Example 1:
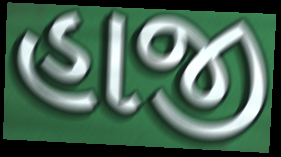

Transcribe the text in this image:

હાજી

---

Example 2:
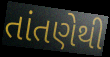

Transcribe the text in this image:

તાંતણેથી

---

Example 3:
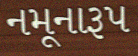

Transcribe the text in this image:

નમૂનારૂપ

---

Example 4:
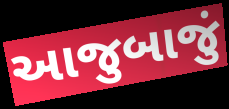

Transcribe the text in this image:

આજુબાજું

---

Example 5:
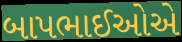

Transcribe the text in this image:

બાપભાઈઓએ